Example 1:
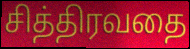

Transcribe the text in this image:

சித்திரவதை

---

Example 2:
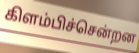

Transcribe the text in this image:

கிளம்பிச்சென்றன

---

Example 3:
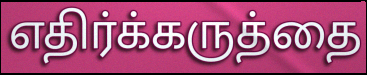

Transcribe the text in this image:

எதிர்க்கருத்தை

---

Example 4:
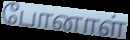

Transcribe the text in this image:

போனாள்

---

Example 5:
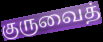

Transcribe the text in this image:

குருவைத்